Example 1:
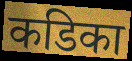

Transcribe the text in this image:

कडिका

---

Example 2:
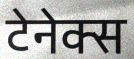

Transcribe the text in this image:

टेनेक्स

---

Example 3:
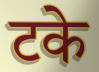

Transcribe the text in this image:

टके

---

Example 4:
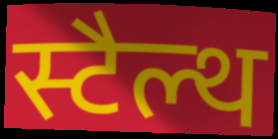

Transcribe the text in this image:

स्टैल्थ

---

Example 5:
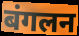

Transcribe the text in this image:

बंगलन